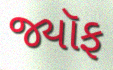
જ્યૉફ